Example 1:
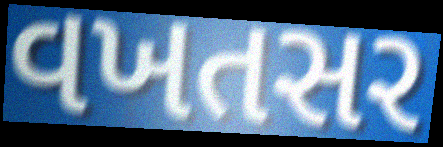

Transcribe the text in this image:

વખતસર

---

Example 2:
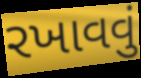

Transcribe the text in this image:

રખાવવું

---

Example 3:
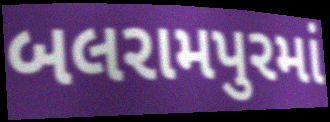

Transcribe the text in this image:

બલરામપુરમાં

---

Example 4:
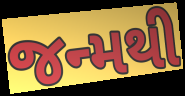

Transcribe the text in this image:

જન્મથી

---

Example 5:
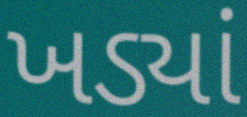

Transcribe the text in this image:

ખડ્યાં